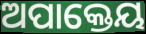
ଅପାକ୍ତେୟ